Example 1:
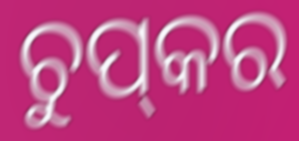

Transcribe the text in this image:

ଚୁପ୍‌କର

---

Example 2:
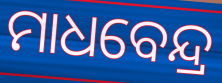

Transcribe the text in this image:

ମାଧବେନ୍ଦ୍ର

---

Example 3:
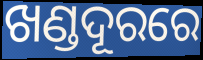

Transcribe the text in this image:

ଖଣ୍ଡଦୂରରେ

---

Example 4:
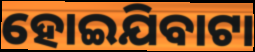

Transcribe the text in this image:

ହୋଇଯିବାଟା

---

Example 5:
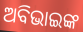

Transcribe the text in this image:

ଅବିଭାଇଙ୍କ